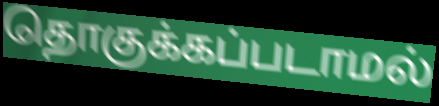
தொகுக்கப்படாமல்